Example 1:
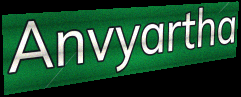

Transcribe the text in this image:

Anvyartha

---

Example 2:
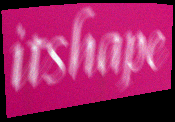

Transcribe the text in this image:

itshape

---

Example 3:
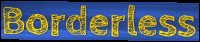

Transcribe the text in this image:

Borderless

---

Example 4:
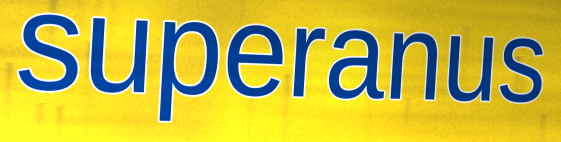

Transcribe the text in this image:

superanus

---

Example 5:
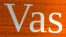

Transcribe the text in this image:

Vas